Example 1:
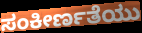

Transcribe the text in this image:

ಸಂಕೀರ್ಣತೆಯು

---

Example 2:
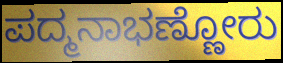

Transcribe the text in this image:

ಪದ್ಮನಾಭಣ್ಣೋರು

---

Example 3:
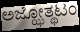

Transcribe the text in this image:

ಅಜ್ಝೋತ್ಥಟಂ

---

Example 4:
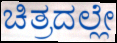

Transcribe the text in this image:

ಚಿತ್ರದಲ್ಲೇ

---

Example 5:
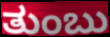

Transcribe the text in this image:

ತುಂಬು